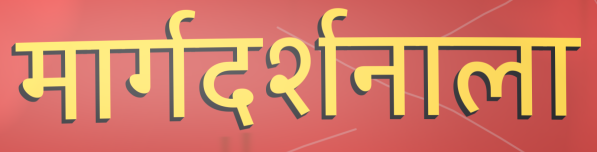
मार्गदर्शनाला